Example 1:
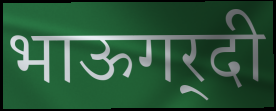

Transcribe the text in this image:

भाऊगर्दी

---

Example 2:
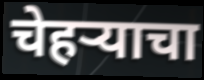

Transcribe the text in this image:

चेहर्‍याचा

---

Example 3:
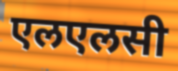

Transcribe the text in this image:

एलएलसी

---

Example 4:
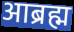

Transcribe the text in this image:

आब्रह्म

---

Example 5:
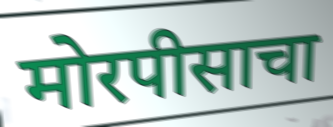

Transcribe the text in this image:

मोरपीसाचा